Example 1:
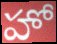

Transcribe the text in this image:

హో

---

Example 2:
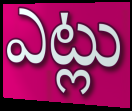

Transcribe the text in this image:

ఎట్లు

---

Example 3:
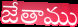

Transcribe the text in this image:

జేతాము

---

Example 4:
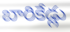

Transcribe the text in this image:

బారికేడ్లు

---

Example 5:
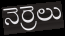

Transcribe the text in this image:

నెర్రెలు